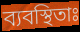
ব্যবস্থিতাঃ